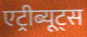
एट्रीब्यूट्स